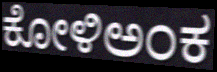
ಕೋಳಿಅಂಕ